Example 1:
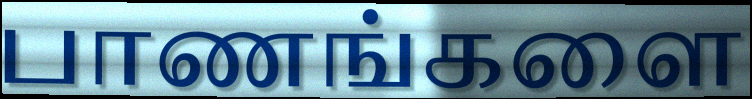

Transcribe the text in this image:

பாணங்களை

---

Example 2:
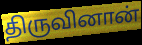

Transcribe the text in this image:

திருவினான்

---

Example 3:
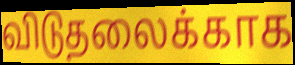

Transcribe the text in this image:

விடுதலைக்காக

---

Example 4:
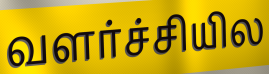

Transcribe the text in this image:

வளர்ச்சியில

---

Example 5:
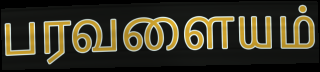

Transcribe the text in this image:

பரவளையம்